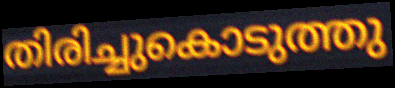
തിരിച്ചുകൊടുത്തു